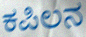
ಕಪಿಲನ